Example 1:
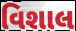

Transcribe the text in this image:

વિશાલ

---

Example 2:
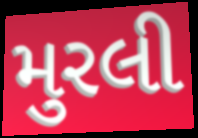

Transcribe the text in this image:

મુરલી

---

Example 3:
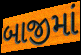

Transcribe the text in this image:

બાજીમાં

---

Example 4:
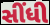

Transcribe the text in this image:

સીંધી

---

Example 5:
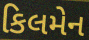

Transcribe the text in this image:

કિલમેન